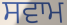
ਸਵਾਮ